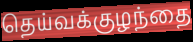
தெய்வக்குழந்தை